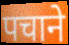
पचाने